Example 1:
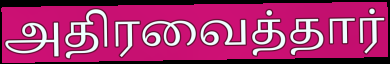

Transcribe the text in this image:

அதிரவைத்தார்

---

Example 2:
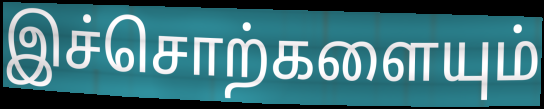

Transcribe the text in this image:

இச்சொற்களையும்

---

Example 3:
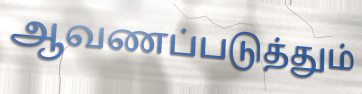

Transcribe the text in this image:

ஆவணப்படுத்தும்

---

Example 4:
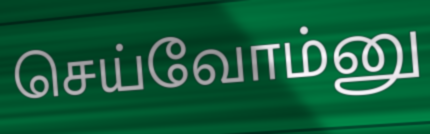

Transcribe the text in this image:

செய்வோம்னு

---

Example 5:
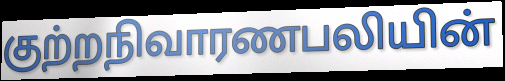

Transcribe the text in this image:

குற்றநிவாரணபலியின்